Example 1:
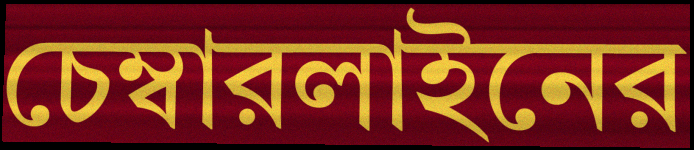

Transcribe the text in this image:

চেম্বারলাইনের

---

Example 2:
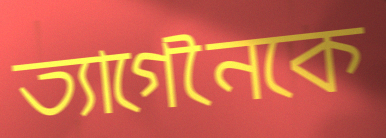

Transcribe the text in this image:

ত্যাগেনৈকে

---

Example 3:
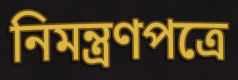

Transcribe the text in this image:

নিমন্ত্রণপত্রে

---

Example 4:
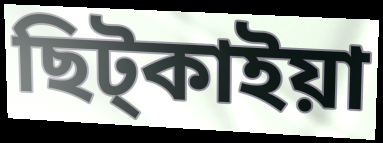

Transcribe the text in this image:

ছিট্কাইয়া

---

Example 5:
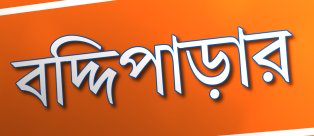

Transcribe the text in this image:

বদ্দিপাড়ার